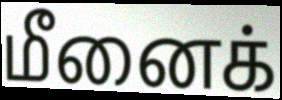
மீனைக்